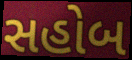
સહોબ